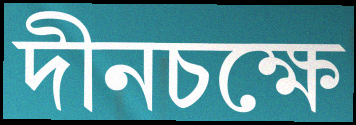
দীনচক্ষে